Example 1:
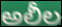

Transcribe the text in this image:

అలీల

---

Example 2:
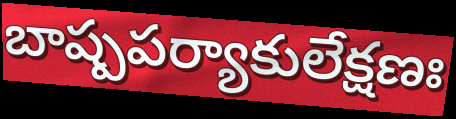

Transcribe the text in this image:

బాష్పపర్యాకులేక్షణః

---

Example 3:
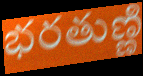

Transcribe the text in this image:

భరతుణ్ణి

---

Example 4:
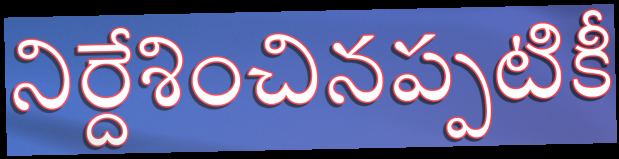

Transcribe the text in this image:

నిర్దేశించినప్పటికీ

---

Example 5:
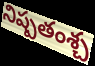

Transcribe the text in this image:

నిష్పతంశ్చ